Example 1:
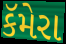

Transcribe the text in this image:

કૅમેરા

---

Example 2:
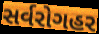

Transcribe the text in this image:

સર્વરોગહર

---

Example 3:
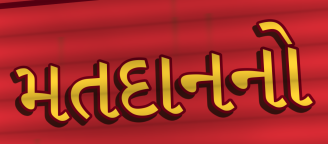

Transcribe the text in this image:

મતદાનનો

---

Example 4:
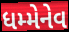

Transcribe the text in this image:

ધમ્મેનેવ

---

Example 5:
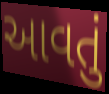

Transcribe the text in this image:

આવતું